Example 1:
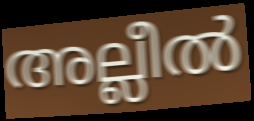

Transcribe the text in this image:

അല്ലീൽ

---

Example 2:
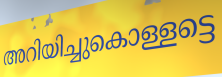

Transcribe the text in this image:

അറിയിച്ചുകൊള്ളട്ടെ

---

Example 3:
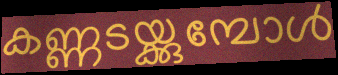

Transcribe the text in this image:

കണ്ണടയ്ക്കുമ്പോൾ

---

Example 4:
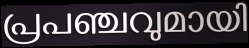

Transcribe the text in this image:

പ്രപഞ്ചവുമായി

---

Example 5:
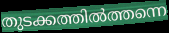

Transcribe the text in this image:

തുടക്കത്തിൽത്തന്നെ